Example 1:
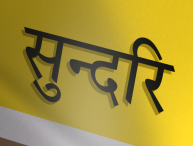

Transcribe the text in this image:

सुन्दरि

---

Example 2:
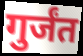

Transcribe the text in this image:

गुर्जंत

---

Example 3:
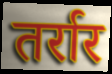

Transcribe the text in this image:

तर्रार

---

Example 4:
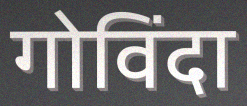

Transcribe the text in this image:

गोविंदा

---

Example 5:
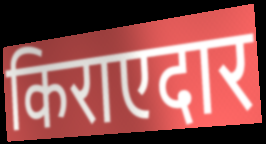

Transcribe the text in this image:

किराएदार